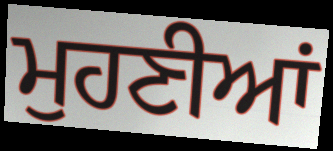
ਮੁਹਣੀਆਂ